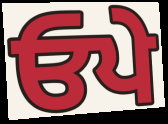
ਓਪੇ